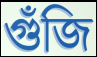
গুঁজি